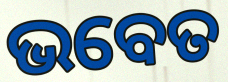
ଭବେତ